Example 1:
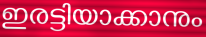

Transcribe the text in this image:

ഇരട്ടിയാക്കാനും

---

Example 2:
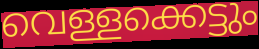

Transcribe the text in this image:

വെള്ളക്കെട്ടും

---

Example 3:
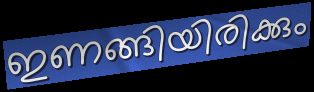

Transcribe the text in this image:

ഇണങ്ങിയിരിക്കും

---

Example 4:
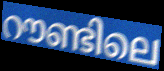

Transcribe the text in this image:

റൗണ്ടിലെ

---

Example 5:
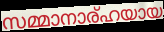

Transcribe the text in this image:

സമ്മാനാര്ഹയായ